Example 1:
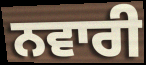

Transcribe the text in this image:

ਨਵਾਰੀ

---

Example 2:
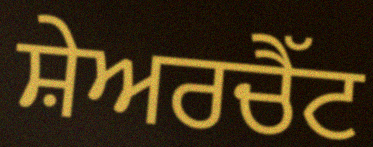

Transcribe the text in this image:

ਸ਼ੇਅਰਚੈੱਟ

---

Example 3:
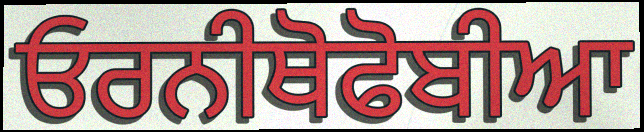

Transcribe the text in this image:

ਓਰਨੀਥੋਫੋਬੀਆ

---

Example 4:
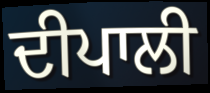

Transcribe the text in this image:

ਦੀਪਾਲੀ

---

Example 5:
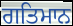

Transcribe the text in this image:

ਗਤਿਮਾਨ